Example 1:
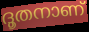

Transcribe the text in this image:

ദൂതനാണ്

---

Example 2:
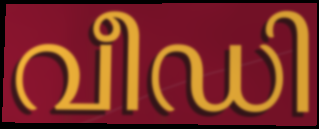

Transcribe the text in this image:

വീഡി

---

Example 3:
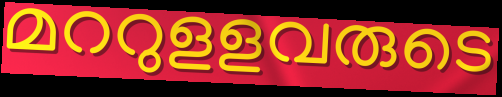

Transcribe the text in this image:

മററുളളവരുടെ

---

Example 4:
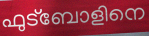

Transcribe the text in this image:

ഫുട്ബോളിനെ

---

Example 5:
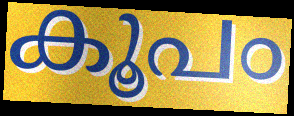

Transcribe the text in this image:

കൂപം